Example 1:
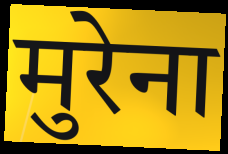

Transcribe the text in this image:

मुरेना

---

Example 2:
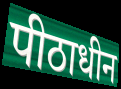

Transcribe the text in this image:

पीठाधीन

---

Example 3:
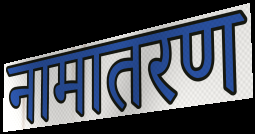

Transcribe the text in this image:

नामातरण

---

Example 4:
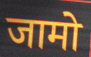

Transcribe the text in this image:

जामो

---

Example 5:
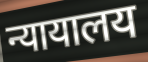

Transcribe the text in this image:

न्यायालय